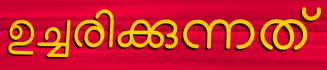
ഉച്ചരിക്കുന്നത്